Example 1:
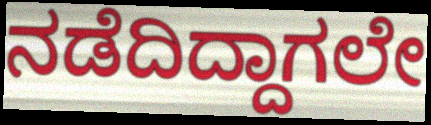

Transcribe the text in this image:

ನಡೆದಿದ್ದಾಗಲೇ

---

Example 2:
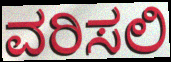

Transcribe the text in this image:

ವರಿಸಲಿ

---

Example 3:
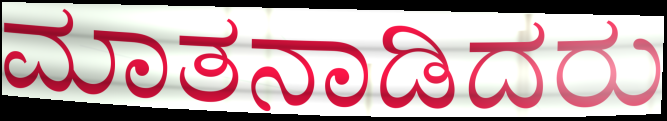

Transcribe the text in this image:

ಮಾತನಾಡಿದರು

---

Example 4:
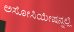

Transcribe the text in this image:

ಅಸೋಸಿಯೇಷನ್ನಲ್ಲಿ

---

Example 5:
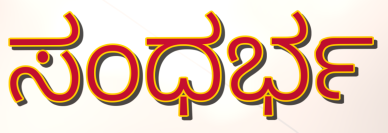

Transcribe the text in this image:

ಸಂಧರ್ಭ